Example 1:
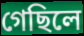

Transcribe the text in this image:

গেছিলে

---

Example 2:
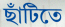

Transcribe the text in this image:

ছাঁটিতে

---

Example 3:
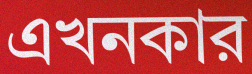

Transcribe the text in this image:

এখনকার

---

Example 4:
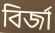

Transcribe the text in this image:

বির্জা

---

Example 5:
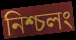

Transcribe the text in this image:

নিশ্চলং